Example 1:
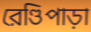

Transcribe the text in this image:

রেণ্ডিপাড়া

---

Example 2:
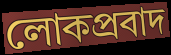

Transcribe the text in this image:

লোকপ্রবাদ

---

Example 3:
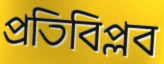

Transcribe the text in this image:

প্রতিবিপ্লব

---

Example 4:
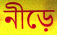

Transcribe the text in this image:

নীড়ে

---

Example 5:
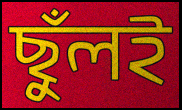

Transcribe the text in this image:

ছুঁলই